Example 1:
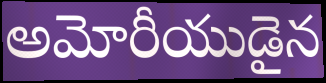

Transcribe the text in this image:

అమోరీయుడైన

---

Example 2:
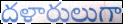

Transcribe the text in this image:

దళారులుగా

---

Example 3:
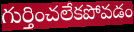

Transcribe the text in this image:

గుర్తించలేకపోవడం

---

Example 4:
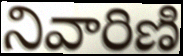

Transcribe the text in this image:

నివారిణి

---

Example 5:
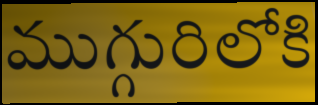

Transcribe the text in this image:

ముగ్గురిలోకి